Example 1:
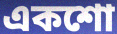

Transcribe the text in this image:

একশো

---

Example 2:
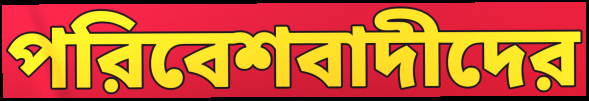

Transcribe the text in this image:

পরিবেশবাদীদের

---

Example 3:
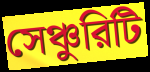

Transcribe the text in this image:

সেঞ্চুরিটি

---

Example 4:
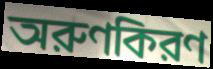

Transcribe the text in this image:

অরুণকিরণ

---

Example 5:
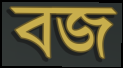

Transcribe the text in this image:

বজ